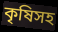
কৃষিসহ